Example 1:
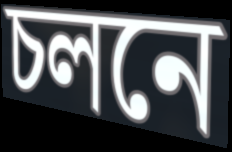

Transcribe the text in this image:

চলনে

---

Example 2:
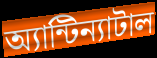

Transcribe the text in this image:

অ্যান্টিন্যাটাল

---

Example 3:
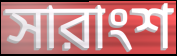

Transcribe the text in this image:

সারাংশ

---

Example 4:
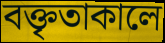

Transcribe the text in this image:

বক্তৃতাকালে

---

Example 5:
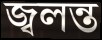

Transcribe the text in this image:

জ্বলন্ত